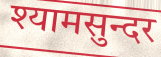
श्यामसुन्दर